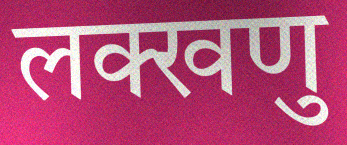
लक्खणु